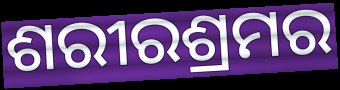
ଶରୀରଶ୍ରମର